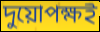
দুয়োপক্ষই